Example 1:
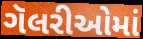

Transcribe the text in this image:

ગૅલરીઓમાં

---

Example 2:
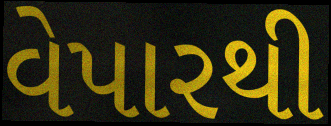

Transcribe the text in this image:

વેપારથી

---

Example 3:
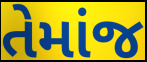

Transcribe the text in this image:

તેમાંજ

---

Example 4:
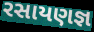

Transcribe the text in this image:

રસાયણજ્ઞ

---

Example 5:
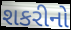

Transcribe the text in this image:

શકરીનો